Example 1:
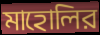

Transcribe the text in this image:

মাহোলির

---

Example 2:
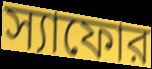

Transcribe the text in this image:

স্যাফোর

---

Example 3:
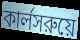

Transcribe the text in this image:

কার্লসরুয়ে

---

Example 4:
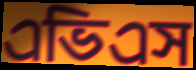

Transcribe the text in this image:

এভিএস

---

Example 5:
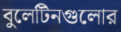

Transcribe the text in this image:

বুলেটিনগুলোর